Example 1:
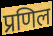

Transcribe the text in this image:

प्रणिल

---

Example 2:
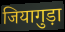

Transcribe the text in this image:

जियागुड़ा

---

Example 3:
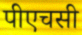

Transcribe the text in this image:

पीएचसी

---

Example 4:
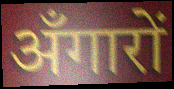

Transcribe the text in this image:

अँगारों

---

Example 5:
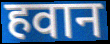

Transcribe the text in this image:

हवान